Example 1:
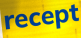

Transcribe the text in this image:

recept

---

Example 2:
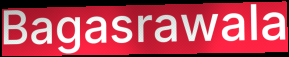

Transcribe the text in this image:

Bagasrawala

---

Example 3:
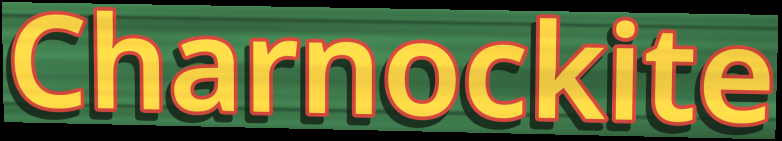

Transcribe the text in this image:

Charnockite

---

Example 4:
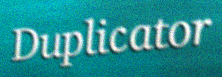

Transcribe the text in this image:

Duplicator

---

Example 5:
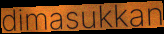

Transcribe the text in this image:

dimasukkan